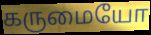
கருமையோ